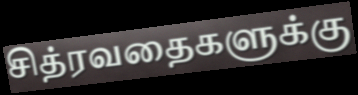
சித்ரவதைகளுக்கு